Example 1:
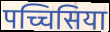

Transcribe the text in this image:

पच्चिसिया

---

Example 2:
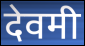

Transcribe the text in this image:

देवमी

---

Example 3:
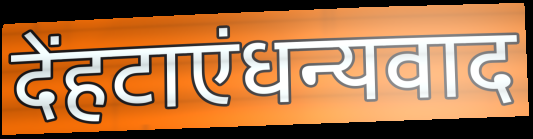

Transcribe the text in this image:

देंहटाएंधन्यवाद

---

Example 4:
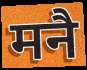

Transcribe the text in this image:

मनै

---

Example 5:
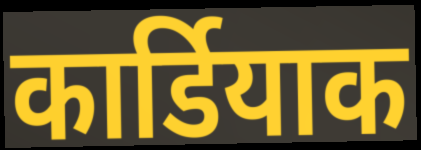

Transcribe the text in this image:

कार्डियाक